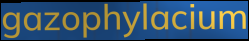
gazophylacium